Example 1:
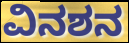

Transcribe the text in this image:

ವಿನಶನ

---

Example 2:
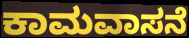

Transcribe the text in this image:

ಕಾಮವಾಸನೆ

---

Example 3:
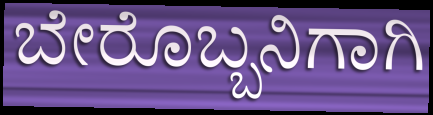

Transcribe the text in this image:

ಬೇರೊಬ್ಬನಿಗಾಗಿ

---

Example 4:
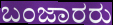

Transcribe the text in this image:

ಬಂಜಾರರು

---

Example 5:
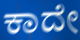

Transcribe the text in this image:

ಕಾದೇ